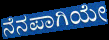
ನೆನಪಾಗಿಯೇ